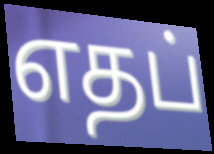
எதப்